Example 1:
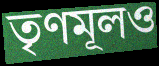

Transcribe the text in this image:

তৃণমূলও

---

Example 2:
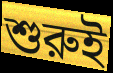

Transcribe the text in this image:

শুরুই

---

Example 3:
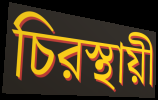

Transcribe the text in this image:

চিরস্থায়ী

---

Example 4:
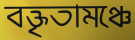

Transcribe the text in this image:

বক্তৃতামঞ্চে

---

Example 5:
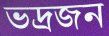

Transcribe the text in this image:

ভদ্রজন